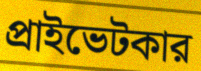
প্রাইভেটকার